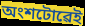
অংশটোৱেই